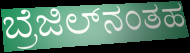
ಬ್ರೆಜಿಲ್‌ನಂತಹ